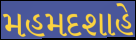
મહમદશાહે